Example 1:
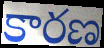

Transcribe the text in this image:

కారణ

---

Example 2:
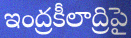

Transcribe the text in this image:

ఇంద్రకీలాద్రిపై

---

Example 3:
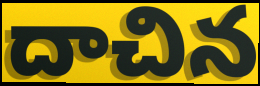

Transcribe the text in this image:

దాచిన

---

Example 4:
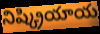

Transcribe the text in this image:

నిష్క్రియాయ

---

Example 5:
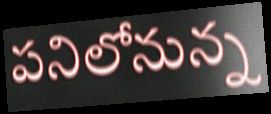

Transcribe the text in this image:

పనిలోనున్న